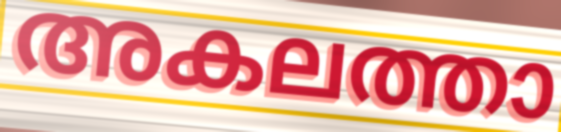
അകലത്താ